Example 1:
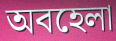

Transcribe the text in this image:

অবহেলা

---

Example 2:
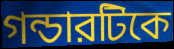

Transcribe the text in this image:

গন্ডারটিকে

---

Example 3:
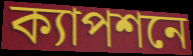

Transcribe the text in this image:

ক্যাপশনে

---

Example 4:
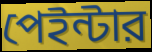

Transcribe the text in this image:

পেইন্টার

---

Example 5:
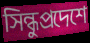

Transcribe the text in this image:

সিন্ধুপ্রদেশে